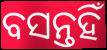
ବସନ୍ତହିଁ